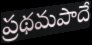
ప్రథమపాదే